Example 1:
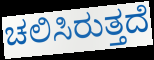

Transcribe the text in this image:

ಚಲಿಸಿರುತ್ತದೆ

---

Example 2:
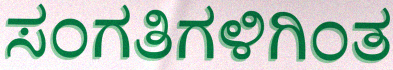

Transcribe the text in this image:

ಸಂಗತಿಗಳಿಗಿಂತ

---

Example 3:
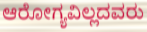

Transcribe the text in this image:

ಆರೋಗ್ಯವಿಲ್ಲದವರು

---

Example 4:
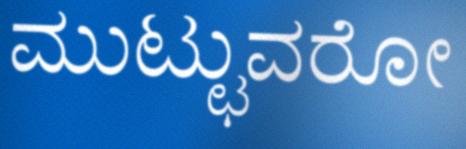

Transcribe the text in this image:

ಮುಟ್ಟುವರೋ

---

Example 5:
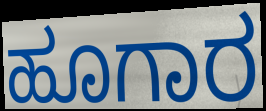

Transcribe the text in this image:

ಹೂಗಾರ